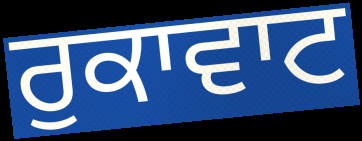
ਰੁਕਾਵਾਟ